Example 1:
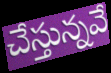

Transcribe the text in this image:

చేస్తున్నవే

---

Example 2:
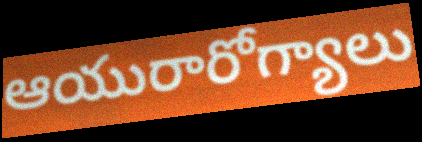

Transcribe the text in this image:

ఆయురారోగ్యాలు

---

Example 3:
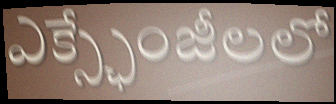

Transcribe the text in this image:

ఎక్స్ఛేంజీలలో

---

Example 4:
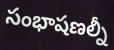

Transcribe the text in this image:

సంభాషణల్నీ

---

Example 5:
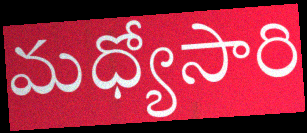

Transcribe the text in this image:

మధ్యోసారి